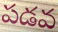
పడవ